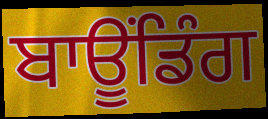
ਬਾਊਂਡਿੰਗ